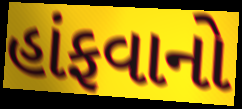
હાંફવાનો